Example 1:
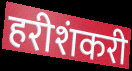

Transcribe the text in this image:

हरीशंकरी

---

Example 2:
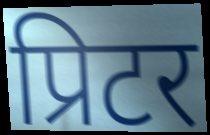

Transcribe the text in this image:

प्रिटर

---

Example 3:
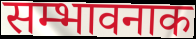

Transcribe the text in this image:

सम्भावनाक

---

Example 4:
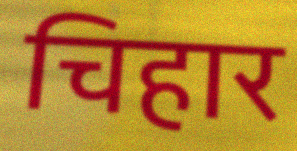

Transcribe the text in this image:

चिहार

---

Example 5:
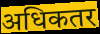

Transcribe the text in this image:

अधिकतर